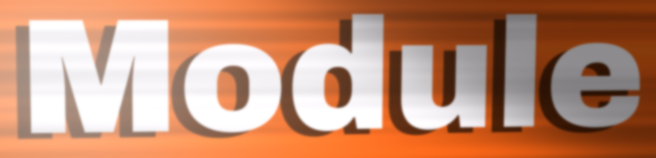
Module